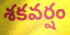
శకవర్షం